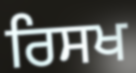
ਰਿਸਖ